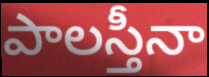
పాలస్తీనా